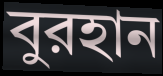
বুরহান